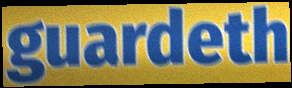
guardeth